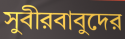
সুবীরবাবুদের